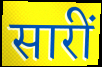
सारीं